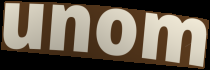
unom